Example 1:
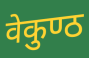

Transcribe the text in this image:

वेकुण्ठ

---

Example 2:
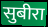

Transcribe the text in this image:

सुबीरा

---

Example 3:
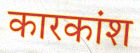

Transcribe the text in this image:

कारकांश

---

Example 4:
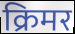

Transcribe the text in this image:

क्रिमर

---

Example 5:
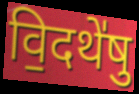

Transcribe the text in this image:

वि॒दथे॑षु